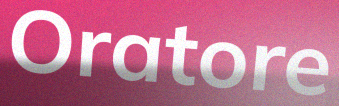
Oratore